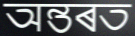
অন্তৰত